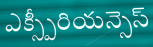
ఎక్స్పీరియన్సెస్